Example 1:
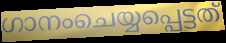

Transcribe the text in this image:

ഗാനംചെയ്യപ്പെട്ടത്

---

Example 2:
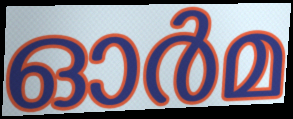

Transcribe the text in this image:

ഓർമ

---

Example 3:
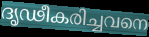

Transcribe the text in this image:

ദൃഢീകരിച്ചവനെ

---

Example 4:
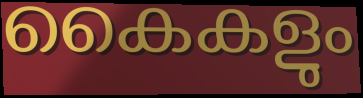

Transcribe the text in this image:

കൈകളും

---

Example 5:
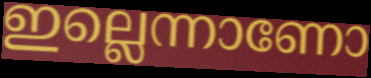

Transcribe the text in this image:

ഇല്ലെന്നാണോ